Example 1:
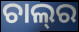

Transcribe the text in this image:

ଚାଲ୍‌ର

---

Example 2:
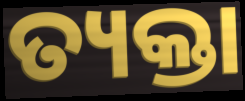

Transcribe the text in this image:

ତ୍ୟକ୍ତା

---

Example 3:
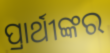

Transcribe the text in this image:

ପ୍ରାର୍ଥୀଙ୍କର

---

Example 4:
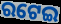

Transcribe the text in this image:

ରଟେଇ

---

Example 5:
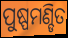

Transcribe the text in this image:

ପୁଷ୍ପମଣ୍ଡିତ